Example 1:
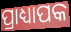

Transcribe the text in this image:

ପ୍ରାଧ୍ୟାପକ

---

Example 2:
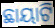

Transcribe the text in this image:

ଛାୟାଟି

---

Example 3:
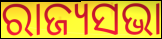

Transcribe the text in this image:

ରାଜ୍ୟସଭା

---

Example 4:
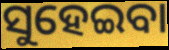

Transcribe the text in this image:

ସୁହେଇବା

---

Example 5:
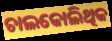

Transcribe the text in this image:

ଚାଲକୋଲିଥିକ